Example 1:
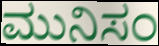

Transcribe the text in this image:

ಮುನಿಸಂ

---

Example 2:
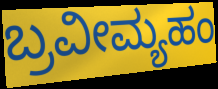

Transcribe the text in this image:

ಬ್ರವೀಮ್ಯಹಂ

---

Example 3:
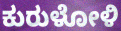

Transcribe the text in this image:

ಕುರುಳೋಳಿ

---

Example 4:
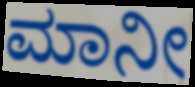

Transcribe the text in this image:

ಮಾನೀ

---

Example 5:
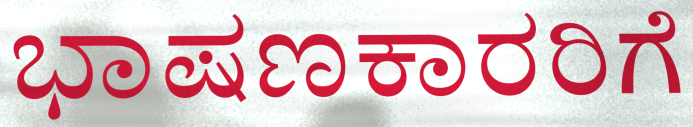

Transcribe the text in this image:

ಭಾಷಣಕಾರರಿಗೆ